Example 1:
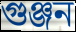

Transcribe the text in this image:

গুঞ্জন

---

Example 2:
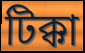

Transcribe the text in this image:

টিক্কা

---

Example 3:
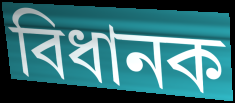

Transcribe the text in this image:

বিধানক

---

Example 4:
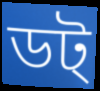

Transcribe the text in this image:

ডট্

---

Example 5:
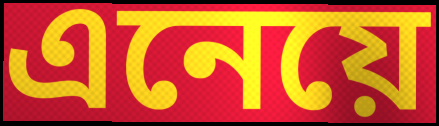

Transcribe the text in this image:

এনেয়ে